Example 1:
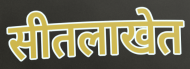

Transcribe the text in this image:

सीतलाखेत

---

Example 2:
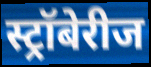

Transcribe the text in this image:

स्ट्रॉबेरीज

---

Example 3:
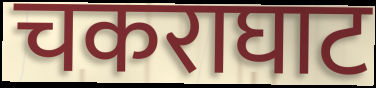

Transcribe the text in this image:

चकराघाट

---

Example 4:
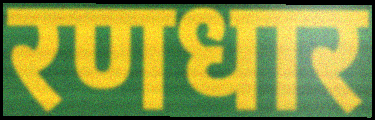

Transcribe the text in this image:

रणधार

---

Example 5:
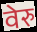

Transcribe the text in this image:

वेरु